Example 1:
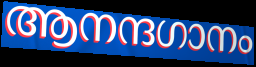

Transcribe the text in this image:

ആനന്ദഗാനം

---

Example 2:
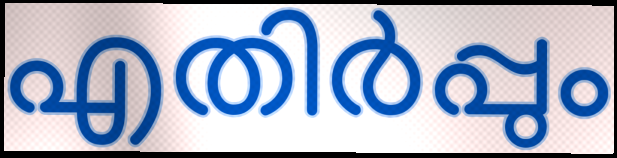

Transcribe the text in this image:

എതിർപ്പും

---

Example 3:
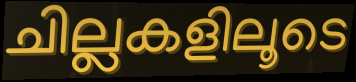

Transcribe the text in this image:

ചില്ലകളിലൂടെ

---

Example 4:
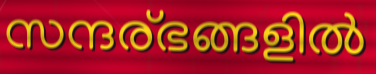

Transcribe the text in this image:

സന്ദര്ഭങ്ങളിൽ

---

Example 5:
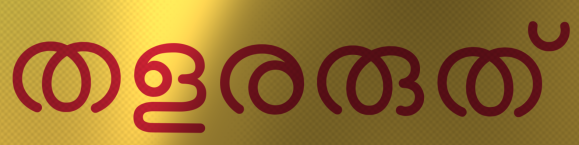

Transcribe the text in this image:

തളരരുത്